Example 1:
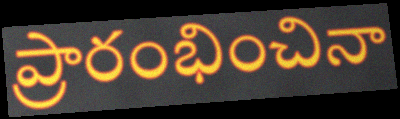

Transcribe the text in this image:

ప్రారంభించినా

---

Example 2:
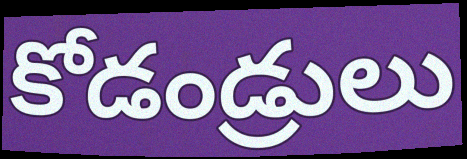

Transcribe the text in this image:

కోడండ్రులు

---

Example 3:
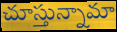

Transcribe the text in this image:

చూస్తున్నామా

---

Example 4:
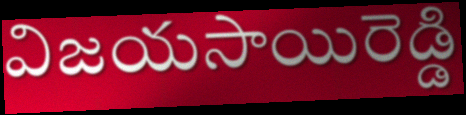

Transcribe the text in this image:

విజయసాయిరెడ్డి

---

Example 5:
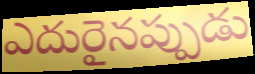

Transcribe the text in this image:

ఎదురైనప్పుడు